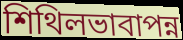
শিথিলভাবাপন্ন